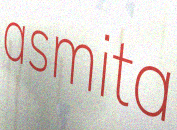
asmita